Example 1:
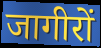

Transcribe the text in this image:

जागीरों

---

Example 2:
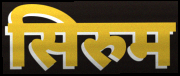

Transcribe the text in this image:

सिरुम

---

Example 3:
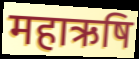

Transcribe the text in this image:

महाऋषि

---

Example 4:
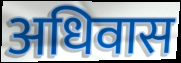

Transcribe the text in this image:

अधिवास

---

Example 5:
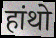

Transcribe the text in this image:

हांथो